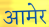
आमेर